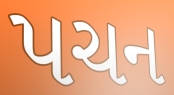
પચન